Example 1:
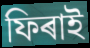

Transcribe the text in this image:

ফিৰাই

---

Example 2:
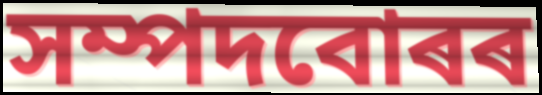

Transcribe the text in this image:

সম্পদবোৰৰ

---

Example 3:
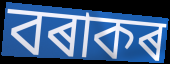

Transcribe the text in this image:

বৰাকৰ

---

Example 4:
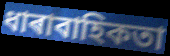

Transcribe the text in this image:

ধাৰাবাহিকতা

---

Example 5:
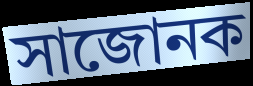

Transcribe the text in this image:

সাজোনক